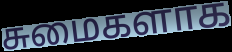
சுமைகளாக